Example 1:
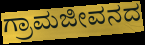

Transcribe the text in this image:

ಗ್ರಾಮಜೀವನದ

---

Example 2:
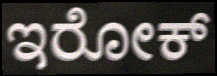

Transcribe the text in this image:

ಇರೋಕ್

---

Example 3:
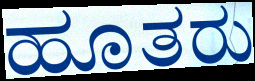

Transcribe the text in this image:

ಹೂತರು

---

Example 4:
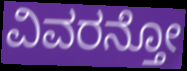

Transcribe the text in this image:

ವಿವರನ್ತೋ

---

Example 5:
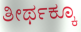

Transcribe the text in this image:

ತೀರ್ಥಕ್ಕೂ